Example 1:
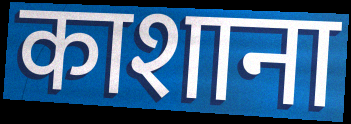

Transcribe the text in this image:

काशाना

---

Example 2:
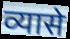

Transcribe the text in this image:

व्यासे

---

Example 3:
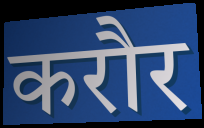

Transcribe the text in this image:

करौर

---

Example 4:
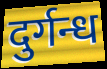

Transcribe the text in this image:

दुर्गन्ध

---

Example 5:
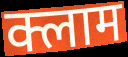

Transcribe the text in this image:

क्लाम